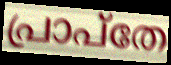
പ്രാപ്തേ